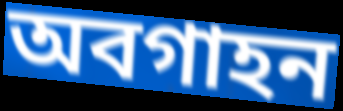
অবগাহন